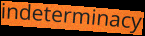
indeterminacy